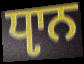
ਧੵਾਨ